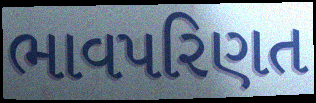
ભાવપરિણત